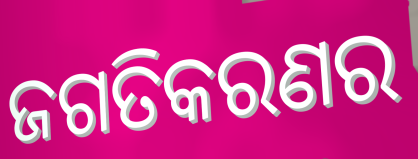
ଜଗତିକରଣର